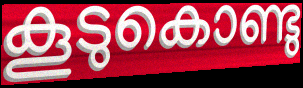
കൂടുകൊണ്ടു